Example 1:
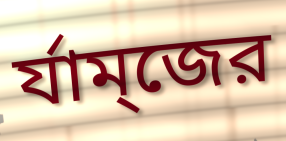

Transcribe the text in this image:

র্যাম্জের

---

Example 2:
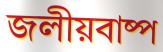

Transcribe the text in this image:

জলীয়বাষ্প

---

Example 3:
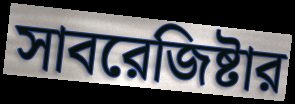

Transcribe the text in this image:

সাবরেজিষ্টার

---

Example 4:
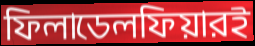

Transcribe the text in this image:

ফিলাডেলফিয়ারই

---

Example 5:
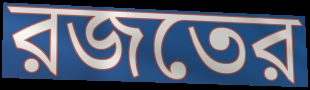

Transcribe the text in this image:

রজতের